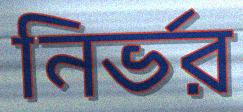
নির্ভর